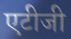
एटीजी